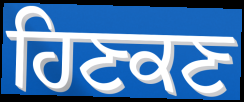
ਹਿਣਕਣ